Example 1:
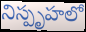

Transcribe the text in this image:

నిస్పృహలో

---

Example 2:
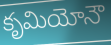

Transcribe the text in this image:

కృమియోనౌ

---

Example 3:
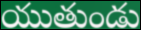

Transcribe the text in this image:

యుతుండు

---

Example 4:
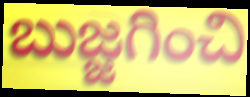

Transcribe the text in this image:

బుజ్జగించి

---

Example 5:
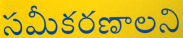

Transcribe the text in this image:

సమీకరణాలని